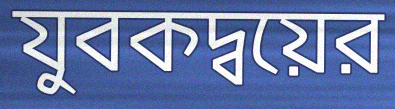
যুবকদ্বয়ের